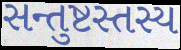
સન્તુષ્ટસ્તસ્ય